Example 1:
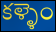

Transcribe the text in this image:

కళ్ళెం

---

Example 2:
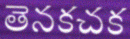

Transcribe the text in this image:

తెనకచక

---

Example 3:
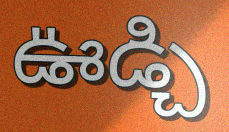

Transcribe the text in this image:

ఊడ్చి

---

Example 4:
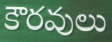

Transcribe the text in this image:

కౌరవులు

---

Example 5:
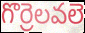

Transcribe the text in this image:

గొర్రెలవలె